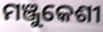
ମଞ୍ଜୁକେଶୀ